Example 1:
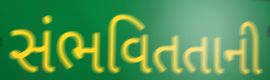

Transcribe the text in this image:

સંભવિતતાની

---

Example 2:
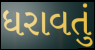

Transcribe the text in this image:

ધરાવતું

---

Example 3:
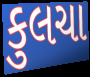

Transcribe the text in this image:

કુલચા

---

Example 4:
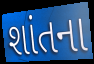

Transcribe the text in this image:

શાંતના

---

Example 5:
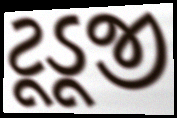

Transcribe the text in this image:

ટૂડૂજી